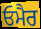
ਓਮੈਰ